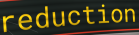
reduction